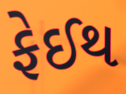
ફેઈથ